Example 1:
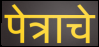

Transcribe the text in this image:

पेत्राचे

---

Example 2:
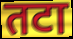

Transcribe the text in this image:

तटा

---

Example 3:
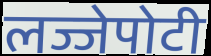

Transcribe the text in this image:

लज्जेपोटी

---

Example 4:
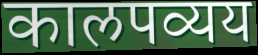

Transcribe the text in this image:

कालपव्यय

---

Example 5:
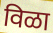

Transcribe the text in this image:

विळा